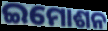
ଇମୋଶନ